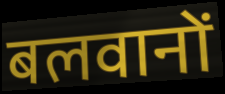
बलवानों